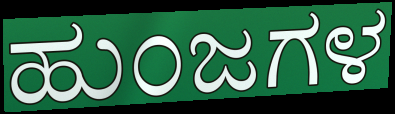
ಹುಂಜಗಳ